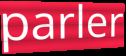
parler